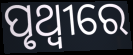
ପୃଥ୍ୱୀରେ